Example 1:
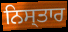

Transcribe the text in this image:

ਨਿਸ੍ਤਾਰ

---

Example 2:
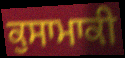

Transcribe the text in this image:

ਕੁਸਾਮਾਕੀ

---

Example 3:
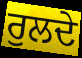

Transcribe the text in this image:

ਰੁਲਦੇ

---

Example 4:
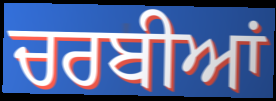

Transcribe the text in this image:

ਚਰਬੀਆਂ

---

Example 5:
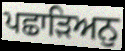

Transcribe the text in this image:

ਪਛਾੜਿਅਨੁ